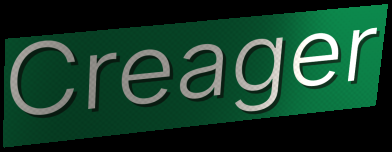
Creager